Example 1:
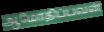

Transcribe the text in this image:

ஆமோதிப்பவன்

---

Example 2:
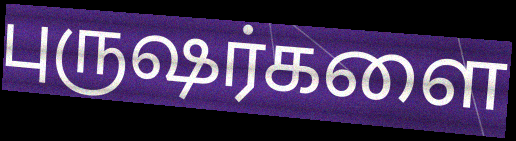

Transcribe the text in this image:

புருஷர்களை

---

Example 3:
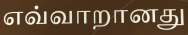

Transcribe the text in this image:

எவ்வாறானது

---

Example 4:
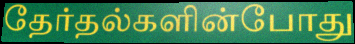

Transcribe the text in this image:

தேர்தல்களின்போது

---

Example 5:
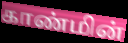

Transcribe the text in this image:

காண்மின்